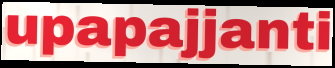
upapajjanti